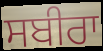
ਸਬੀਰਾ